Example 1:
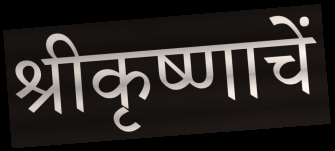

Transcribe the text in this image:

श्रीकृष्णाचें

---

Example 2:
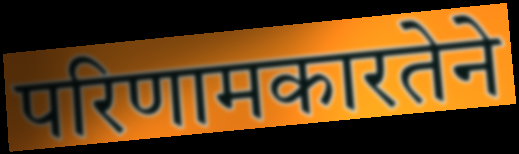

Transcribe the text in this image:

परिणामकारतेने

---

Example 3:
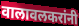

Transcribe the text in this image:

वालावलकरांनी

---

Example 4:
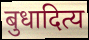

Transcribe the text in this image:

बुधादित्य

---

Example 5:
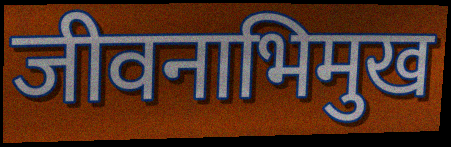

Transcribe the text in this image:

जीवनाभिमुख